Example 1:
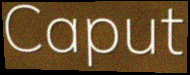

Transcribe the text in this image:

Caput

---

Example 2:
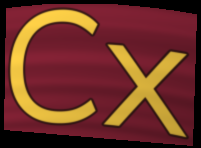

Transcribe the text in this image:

Cx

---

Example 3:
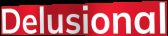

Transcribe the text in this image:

Delusional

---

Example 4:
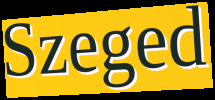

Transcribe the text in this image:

Szeged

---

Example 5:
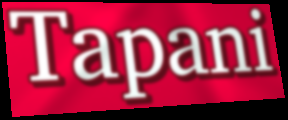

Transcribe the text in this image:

Tapani